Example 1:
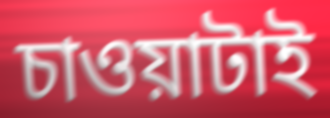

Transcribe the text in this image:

চাওয়াটাই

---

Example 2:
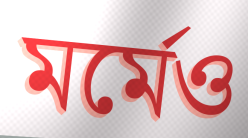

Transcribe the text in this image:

মর্মেও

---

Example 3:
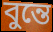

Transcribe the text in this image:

বুন্তে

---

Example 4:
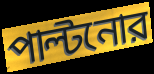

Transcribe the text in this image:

পাল্টনোর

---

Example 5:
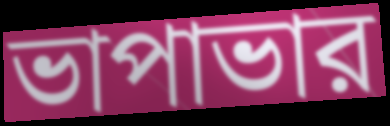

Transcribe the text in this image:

ভাপাভার